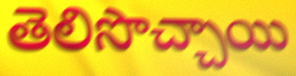
తెలిసొచ్చాయి